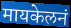
मायकेलनं